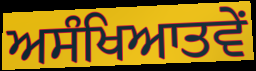
ਅਸੰਖਿਆਤਵੇਂ